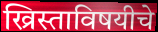
ख्रिस्ताविषयीचे